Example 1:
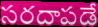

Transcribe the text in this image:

సరదాపడే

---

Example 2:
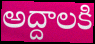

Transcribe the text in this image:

అద్దాలకి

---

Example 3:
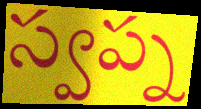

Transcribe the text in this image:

స్వప్న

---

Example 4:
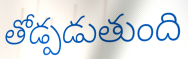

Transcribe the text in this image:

తోడ్పడుతుంది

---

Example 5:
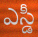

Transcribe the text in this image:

ఎస్డీ